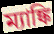
ম্যাঙ্কি